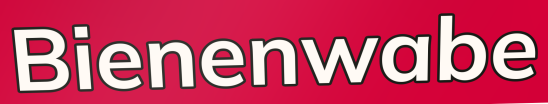
Bienenwabe